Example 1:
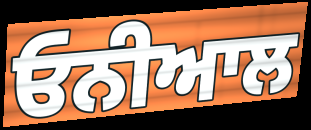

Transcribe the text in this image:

ਓਨੀਆਲ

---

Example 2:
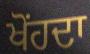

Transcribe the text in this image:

ਖੋਂਹਦਾ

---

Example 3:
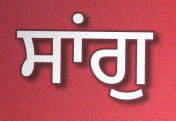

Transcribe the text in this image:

ਸਾਂਗੁ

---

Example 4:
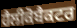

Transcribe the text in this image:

ਹੈਲੀਕੋਬੈਕਟਰ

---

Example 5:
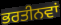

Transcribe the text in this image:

ਭਰਤੀਨਵਾਂ